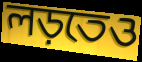
লড়তেও